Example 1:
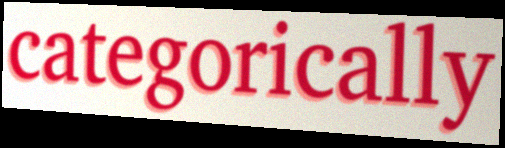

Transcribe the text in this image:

categorically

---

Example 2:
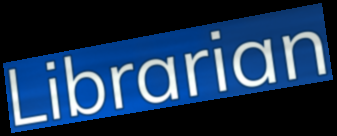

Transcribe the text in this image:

Librarian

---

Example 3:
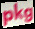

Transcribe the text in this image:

pkg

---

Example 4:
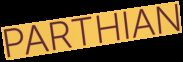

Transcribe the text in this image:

PARTHIAN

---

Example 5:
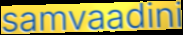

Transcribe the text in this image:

samvaadini